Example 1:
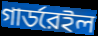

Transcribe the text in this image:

গার্ডরেইল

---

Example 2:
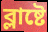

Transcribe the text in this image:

ব্লাষ্টে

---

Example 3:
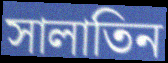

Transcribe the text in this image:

সালাতিন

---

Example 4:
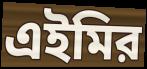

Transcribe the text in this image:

এইমির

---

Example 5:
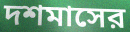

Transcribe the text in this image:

দশমাসের